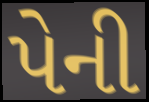
પેની